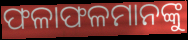
ଫଳାଫଳମାନଙ୍କୁ